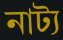
নাট্য